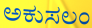
ಅಕುಸಲಂ